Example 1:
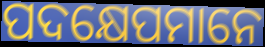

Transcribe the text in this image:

ପଦକ୍ଷେପମାନେ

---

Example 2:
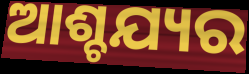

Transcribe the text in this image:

ଆଶ୍ଚଯ୍ୟର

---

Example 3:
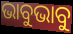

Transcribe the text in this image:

ଭାବୁଭାବୁ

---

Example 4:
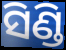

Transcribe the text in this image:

ସିଣ୍ଡି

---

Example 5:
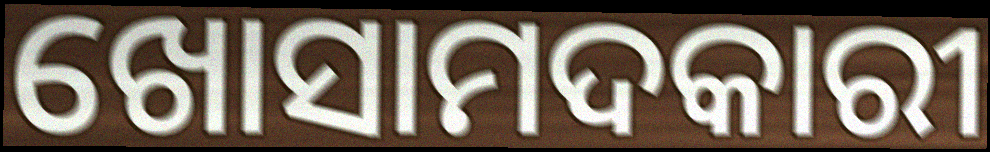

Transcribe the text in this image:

ଖୋସାମଦକାରୀ